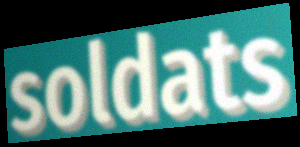
soldats